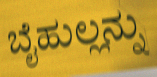
ಬೈಹುಲ್ಲನ್ನು